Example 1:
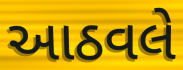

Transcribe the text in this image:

આઠવલે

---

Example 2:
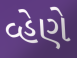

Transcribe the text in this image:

વ્હેણે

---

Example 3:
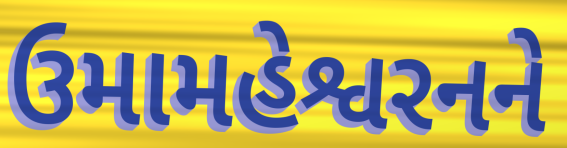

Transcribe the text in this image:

ઉમામહેશ્વરનને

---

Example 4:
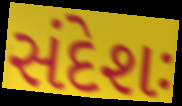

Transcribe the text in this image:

સંદેશઃ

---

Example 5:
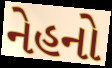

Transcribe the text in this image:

નેહનો